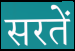
सरतें